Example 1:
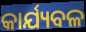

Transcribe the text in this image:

କାର୍ଯ୍ୟବଳ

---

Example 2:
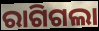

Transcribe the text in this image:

ରାଗିଗଲା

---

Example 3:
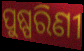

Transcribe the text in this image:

ପୁଷ୍ପରିଣୀ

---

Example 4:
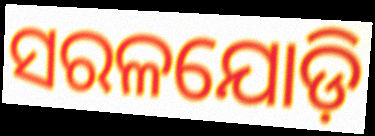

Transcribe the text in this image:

ସରଳଯୋଡ଼ି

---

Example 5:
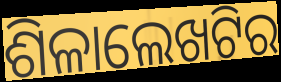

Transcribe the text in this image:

ଶିଳାଲେଖଟିର